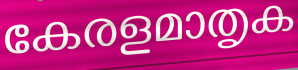
കേരളമാതൃക